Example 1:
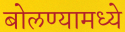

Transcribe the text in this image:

बोलण्यामध्ये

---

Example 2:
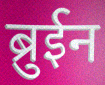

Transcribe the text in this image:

ब्रुईन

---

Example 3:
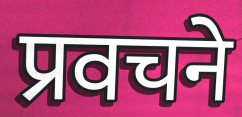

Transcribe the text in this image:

प्रवचने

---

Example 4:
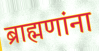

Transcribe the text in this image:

ब्राह्मणांना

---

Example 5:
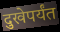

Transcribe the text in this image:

दुखेपर्यंत